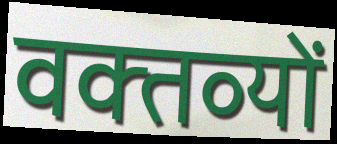
वक्‍तव्‍यों